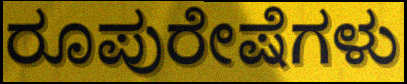
ರೂಪುರೇಷೆಗಳು